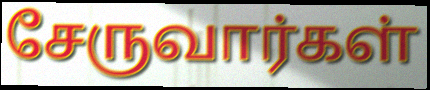
சேருவார்கள்